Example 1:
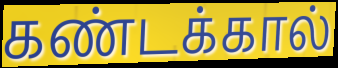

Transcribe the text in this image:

கண்டக்கால்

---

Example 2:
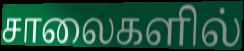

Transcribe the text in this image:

சாலைகளில்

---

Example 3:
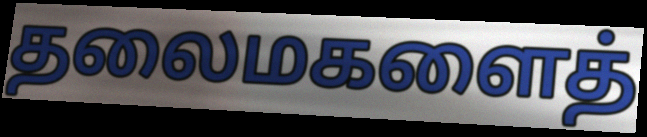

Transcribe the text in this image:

தலைமகளைத்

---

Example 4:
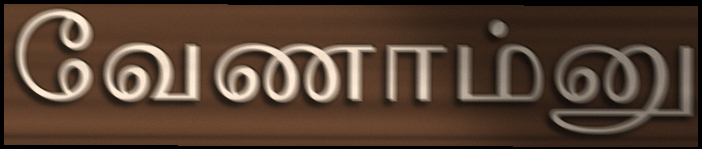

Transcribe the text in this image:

வேணாம்னு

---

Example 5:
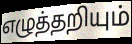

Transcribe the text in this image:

எழுத்தறியும்